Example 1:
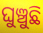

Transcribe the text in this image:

ଘୁଞ୍ଚୁଛି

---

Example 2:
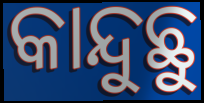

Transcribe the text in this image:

କାନ୍ଦୁଛୁ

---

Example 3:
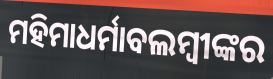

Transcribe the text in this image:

ମହିମାଧର୍ମାବଲମ୍ବୀଙ୍କର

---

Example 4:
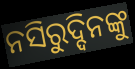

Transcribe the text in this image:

ନସିରୁଦ୍ଦିନଙ୍କୁ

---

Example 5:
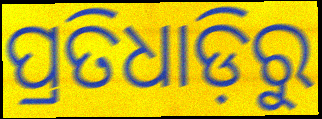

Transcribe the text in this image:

ପ୍ରତିଧାଡ଼ିରୁ